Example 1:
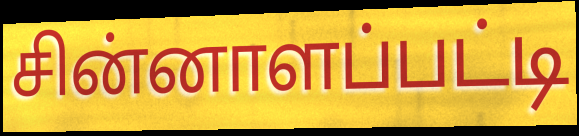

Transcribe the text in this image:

சின்னாளப்பட்டி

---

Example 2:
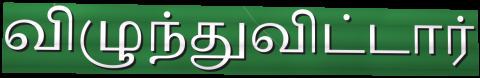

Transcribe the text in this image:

விழுந்துவிட்டார்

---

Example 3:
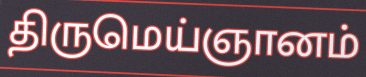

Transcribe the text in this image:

திருமெய்ஞானம்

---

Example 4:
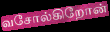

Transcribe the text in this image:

வசோல்கிறோன்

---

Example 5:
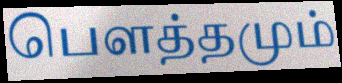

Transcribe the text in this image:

பௌத்தமும்